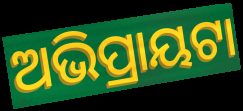
ଅଭିପ୍ରାୟଟା